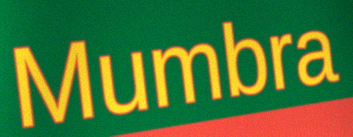
Mumbra